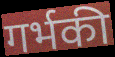
गर्भकी